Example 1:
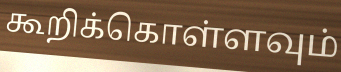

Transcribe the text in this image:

கூறிக்கொள்ளவும்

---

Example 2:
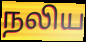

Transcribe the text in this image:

நலிய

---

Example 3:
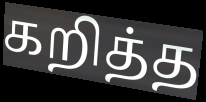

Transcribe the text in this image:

கறித்த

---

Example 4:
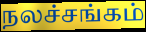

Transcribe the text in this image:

நலச்சங்கம்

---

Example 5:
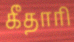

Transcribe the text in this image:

கீதாரி